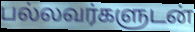
பல்லவர்களுடன்